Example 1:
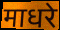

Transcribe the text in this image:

माधरे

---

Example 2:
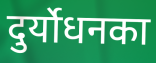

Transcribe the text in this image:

दुर्योधनका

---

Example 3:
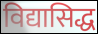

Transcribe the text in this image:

विद्यासिद्ध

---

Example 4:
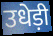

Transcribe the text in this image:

उधेड़ी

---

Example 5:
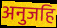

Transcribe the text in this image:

अनुजहि